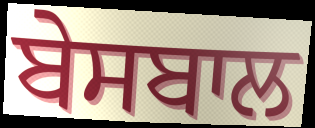
ਬੇਸਬਾਲ